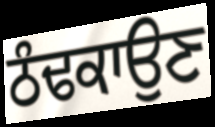
ਠੰਢਕਾਉਣ